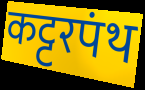
कट्टरपंथ